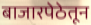
बाजारपेठेतून